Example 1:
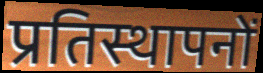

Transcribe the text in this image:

प्रतिस्थापनों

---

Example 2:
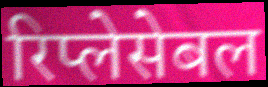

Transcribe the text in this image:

रिप्लेसेबल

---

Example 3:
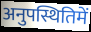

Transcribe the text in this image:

अनुपस्थितिमें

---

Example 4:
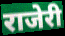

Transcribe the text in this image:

राजेरी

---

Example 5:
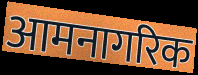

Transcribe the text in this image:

आमनागरिक